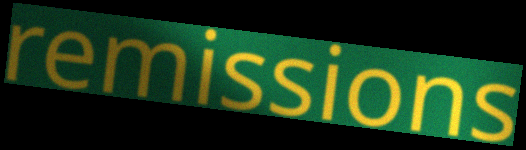
remissions